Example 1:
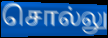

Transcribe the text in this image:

சொல்லு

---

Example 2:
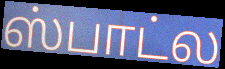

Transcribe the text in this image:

ஸ்பாட்ல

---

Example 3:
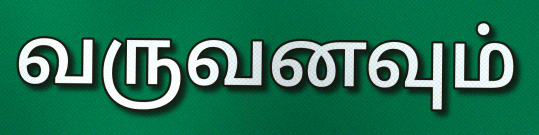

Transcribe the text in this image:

வருவனவும்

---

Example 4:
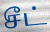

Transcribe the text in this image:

சீட்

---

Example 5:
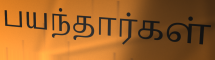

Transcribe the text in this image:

பயந்தார்கள்